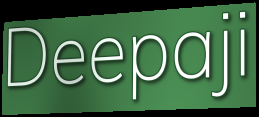
Deepaji